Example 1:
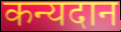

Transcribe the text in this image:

कन्यदान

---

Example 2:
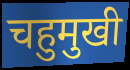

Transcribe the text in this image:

चहुमुखी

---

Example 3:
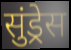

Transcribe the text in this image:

सुंड्रेस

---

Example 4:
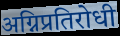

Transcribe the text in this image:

अग्निप्रतिरोधी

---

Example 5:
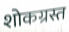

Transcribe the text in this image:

शोकग्रस्त